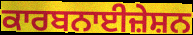
ਕਾਰਬਨਾਈਜ਼ੇਸ਼ਨ